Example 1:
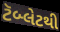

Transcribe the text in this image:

ટૅબ્લેટથી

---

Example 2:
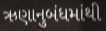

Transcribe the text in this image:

ઋણાનુબંધમાંથી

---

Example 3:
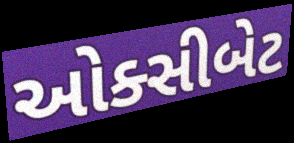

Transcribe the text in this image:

ઓક્સીબેટ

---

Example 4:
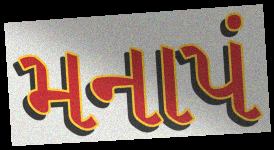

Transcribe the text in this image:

મનાપં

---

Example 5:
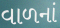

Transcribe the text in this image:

વાળનાં